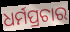
ଧର୍ମପ୍ରଚାର